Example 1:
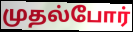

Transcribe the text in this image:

முதல்போர்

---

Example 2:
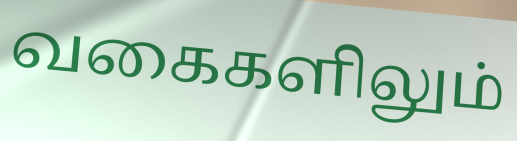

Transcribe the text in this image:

வகைகளிலும்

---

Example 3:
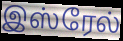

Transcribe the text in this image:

இஸ்ரேல்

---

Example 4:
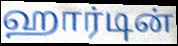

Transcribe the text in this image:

ஹார்டின்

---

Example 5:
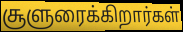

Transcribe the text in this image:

சூளுரைக்கிறார்கள்